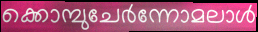
ക്കൊമ്പുചേർന്നോമലാൾ